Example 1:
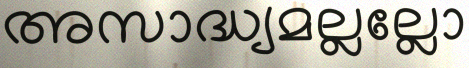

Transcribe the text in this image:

അസാദ്ധ്യമല്ലല്ലോ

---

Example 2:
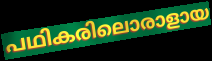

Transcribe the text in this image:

പഥികരിലൊരാളായ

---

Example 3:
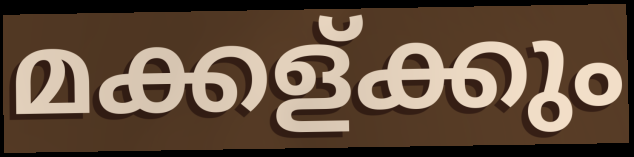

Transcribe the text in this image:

മക്കള്ക്കും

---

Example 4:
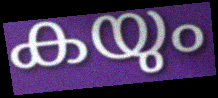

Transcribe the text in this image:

കയും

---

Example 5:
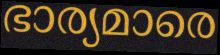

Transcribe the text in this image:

ഭാര്യമാരെ